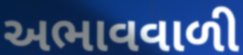
અભાવવાળી